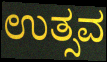
ಉತ್ಸವ